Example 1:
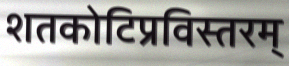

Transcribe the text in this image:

शतकोटिप्रविस्तरम्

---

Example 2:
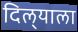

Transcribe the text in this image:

दिल्याला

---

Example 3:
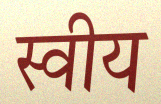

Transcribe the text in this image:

स्वीय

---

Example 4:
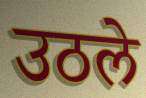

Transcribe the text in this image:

उठले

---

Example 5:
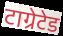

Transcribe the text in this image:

टाग्रेटेड